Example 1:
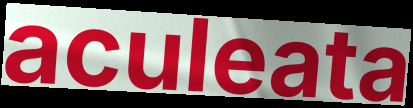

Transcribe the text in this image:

aculeata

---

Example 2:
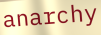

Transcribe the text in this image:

anarchy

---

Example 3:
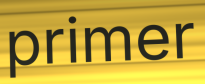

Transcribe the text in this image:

primer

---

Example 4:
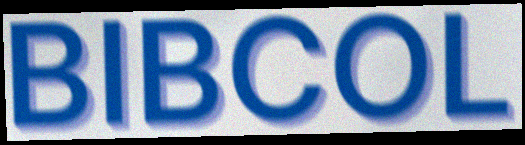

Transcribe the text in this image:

BIBCOL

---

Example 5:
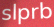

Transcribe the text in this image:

slprb